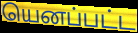
யெனப்பட்ட